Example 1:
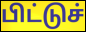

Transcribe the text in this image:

பிட்டுச்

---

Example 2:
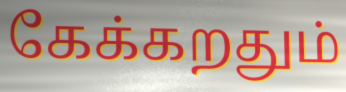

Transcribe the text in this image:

கேக்கறதும்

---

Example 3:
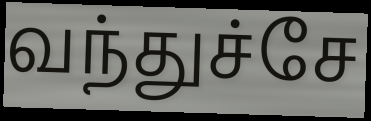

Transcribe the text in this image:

வந்துச்சே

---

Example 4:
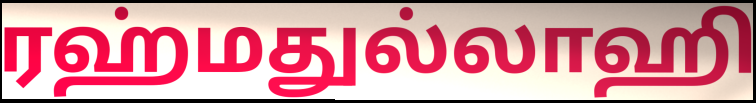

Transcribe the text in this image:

ரஹ்மதுல்லாஹி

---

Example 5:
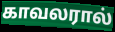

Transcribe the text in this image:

காவலரால்